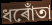
ধৰোঁতা